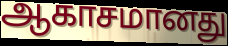
ஆகாசமானது